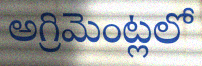
అగ్రిమెంట్లలో